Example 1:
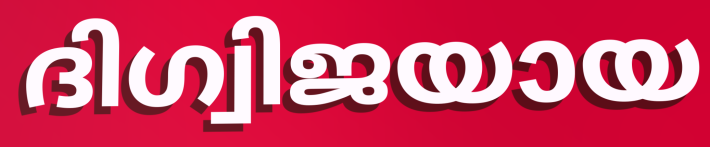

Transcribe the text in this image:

ദിഗ്വിജയായ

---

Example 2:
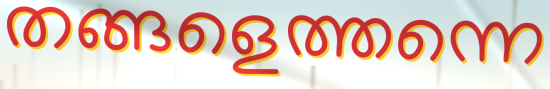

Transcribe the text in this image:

തങ്ങളെത്തന്നെ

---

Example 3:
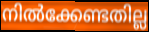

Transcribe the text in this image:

നിൽക്കേണ്ടതില്ല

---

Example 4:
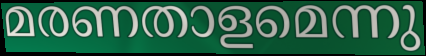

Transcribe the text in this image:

മരണതാളമെന്നു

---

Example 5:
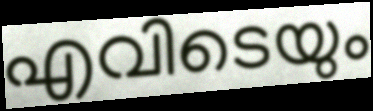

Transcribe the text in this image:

എവിടെയും